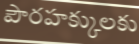
పౌరహక్కులకు